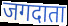
जगदाता